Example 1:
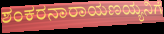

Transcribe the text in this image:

ಶಂಕರನಾರಾಯಣಯ್ಯನಿಗೆ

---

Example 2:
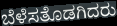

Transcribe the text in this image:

ಬೆಳೆಸತೊಡಗಿದರು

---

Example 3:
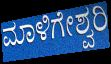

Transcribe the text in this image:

ಮಾಳಿಗೇಶ್ವರಿ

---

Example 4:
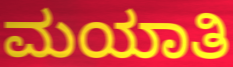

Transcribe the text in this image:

ಮಯಾತಿ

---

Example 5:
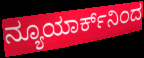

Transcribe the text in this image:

ನ್ಯೂಯಾರ್ಕ್‌ನಿಂದ